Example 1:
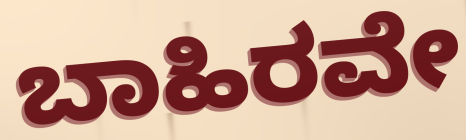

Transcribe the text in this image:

ಬಾಹಿರವೇ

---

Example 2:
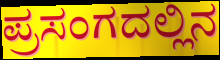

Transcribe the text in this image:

ಪ್ರಸಂಗದಲ್ಲಿನ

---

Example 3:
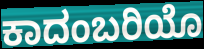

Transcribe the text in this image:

ಕಾದಂಬರಿಯೊ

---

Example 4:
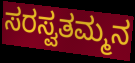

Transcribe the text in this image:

ಸರಸ್ವತಮ್ಮನ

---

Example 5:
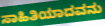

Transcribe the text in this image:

ಸಾಹಿತಿಯಾದವನು